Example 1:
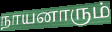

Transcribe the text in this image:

நாயனாரும்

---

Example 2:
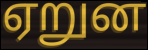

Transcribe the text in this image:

ஏறுன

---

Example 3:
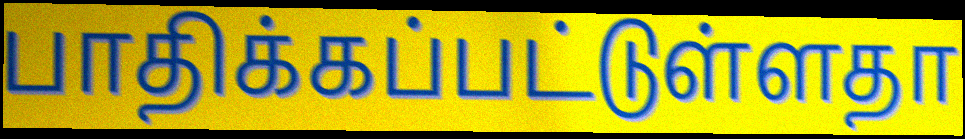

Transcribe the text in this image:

பாதிக்கப்பட்டுள்ளதா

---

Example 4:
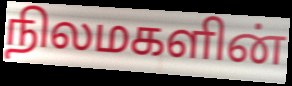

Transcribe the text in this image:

நிலமகளின்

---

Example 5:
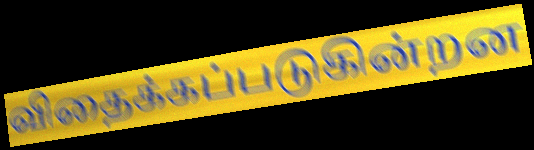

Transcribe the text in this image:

விதைக்கப்படுகின்றன